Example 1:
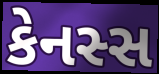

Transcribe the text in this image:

કેનસ્સ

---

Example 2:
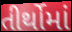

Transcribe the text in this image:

તીર્થોમાં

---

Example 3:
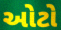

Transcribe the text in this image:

ઓટો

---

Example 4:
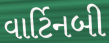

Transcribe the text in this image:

વાર્ટિનબી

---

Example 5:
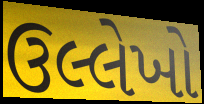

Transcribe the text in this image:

ઉલ્લેખો